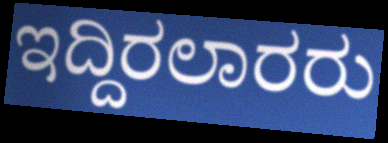
ಇದ್ದಿರಲಾರರು